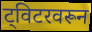
ट्विटरवरून